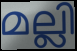
മല്ലി